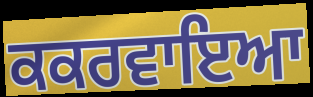
ਕਕਰਵਾਇਆ